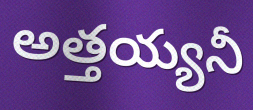
అత్తయ్యనీ